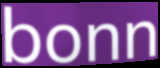
bonn